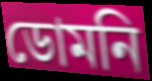
ডোমনি